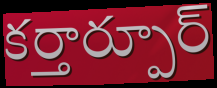
కర్తార్పూర్